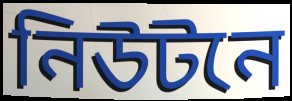
নিউটনে